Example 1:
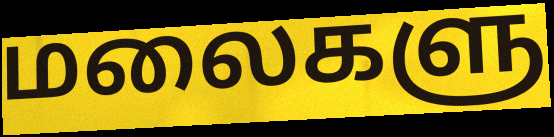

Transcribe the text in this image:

மலைகளு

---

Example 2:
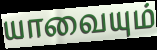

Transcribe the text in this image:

யாவையும்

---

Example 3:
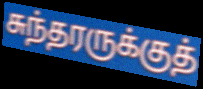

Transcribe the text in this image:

சுந்தரருக்குத்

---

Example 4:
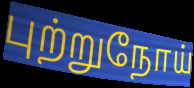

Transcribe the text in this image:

புற்றுநோய்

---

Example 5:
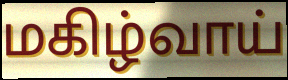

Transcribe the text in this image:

மகிழ்வாய்